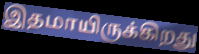
இதமாயிருக்கிறது